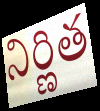
నిర్ణిత